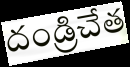
దండ్రిచేత